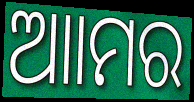
ଆାମର